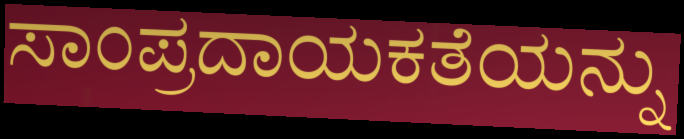
ಸಾಂಪ್ರದಾಯಕತೆಯನ್ನು